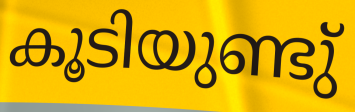
കൂടിയുണ്ടു്